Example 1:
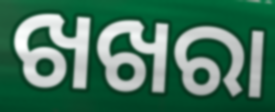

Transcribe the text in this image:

ଖଖରା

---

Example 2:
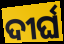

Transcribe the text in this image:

ଦୀର୍ଘ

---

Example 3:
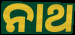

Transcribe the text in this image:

ନାଥ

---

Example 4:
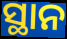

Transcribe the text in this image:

ସ୍ଥାନ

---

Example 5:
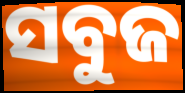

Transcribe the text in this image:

ସବୁଜ